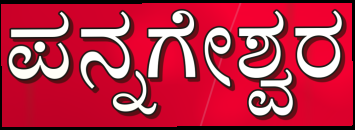
ಪನ್ನಗೇಶ್ವರ